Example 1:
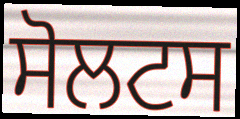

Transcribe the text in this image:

ਸੋਲਟਸ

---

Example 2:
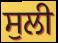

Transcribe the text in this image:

ਸੁਲੀ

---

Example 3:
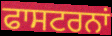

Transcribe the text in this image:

ਫਾਸਟਰਨਾਂ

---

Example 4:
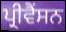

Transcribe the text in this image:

ਪ੍ਰੀਵੈਂਸਨ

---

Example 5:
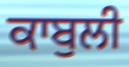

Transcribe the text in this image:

ਕਾਬੁਲੀ